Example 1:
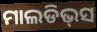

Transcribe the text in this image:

ମାଲଡିଭ୍‌ସ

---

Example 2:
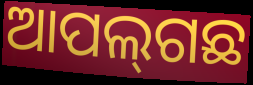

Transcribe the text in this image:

ଆପଲ୍‍ଗଛ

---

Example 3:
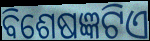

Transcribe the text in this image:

ବିଶେଷଜ୍ଞଟିଏ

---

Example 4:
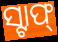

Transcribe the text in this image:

ସ୍ଟାଫ୍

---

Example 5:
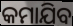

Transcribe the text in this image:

କମାଯିବ